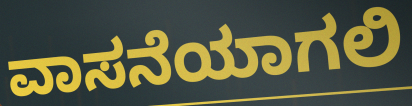
ವಾಸನೆಯಾಗಲಿ